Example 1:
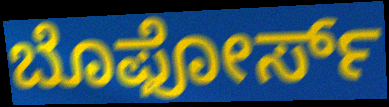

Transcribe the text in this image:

ಬೊಫೋರ್ಸ್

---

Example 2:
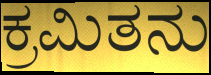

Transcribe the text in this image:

ಕ್ರಮಿತನು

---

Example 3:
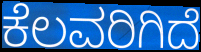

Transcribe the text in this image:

ಕೆಲವರಿಗಿದೆ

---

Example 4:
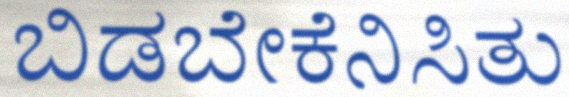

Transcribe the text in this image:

ಬಿಡಬೇಕೆನಿಸಿತು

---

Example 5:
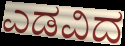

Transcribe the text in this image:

ಎಡವಿದ